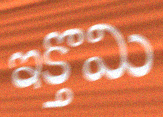
ఇక్తొమి